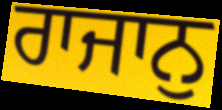
ਰਾਜਾਨੁ